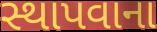
સ્થાપવાના